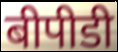
बीपीडी